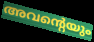
അവന്റെയും